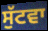
ਸੁੱਟਵਾ